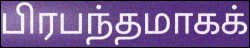
பிரபந்தமாகக்